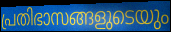
പ്രതിഭാസങ്ങളുടെയും